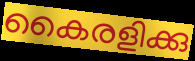
കൈരളിക്കു